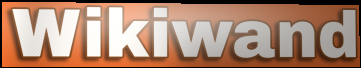
Wikiwand